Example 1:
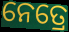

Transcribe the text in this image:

ନେତ୍ରେ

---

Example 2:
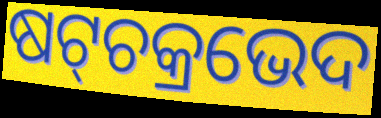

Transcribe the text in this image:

ଷଟ୍‌ଚକ୍ରଭେଦ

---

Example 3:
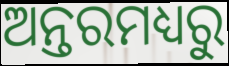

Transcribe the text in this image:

ଅନ୍ତରମଧ୍ୟରୁ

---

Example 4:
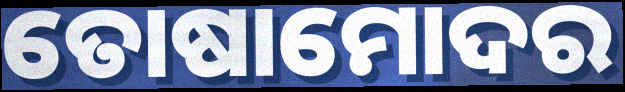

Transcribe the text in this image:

ତୋଷାମୋଦର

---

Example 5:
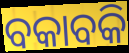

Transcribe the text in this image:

ବକାବକି